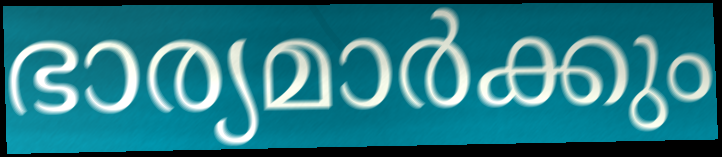
ഭാര്യമാർക്കും